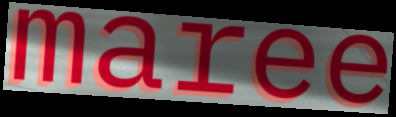
maree